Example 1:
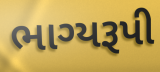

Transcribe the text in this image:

ભાગ્યરૂપી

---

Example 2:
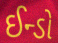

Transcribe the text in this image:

ઈન્ડો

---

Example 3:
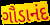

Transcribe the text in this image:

ગૌડાનંદ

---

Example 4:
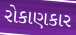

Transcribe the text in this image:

રોકાણકાર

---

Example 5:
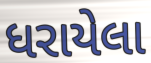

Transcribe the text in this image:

ધરાયેલા